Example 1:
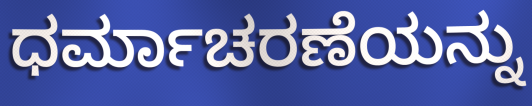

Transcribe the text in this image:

ಧರ್ಮಾಚರಣೆಯನ್ನು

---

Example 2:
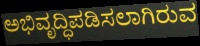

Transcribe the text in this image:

ಅಭಿವೃದ್ಧಿಪಡಿಸಲಾಗಿರುವ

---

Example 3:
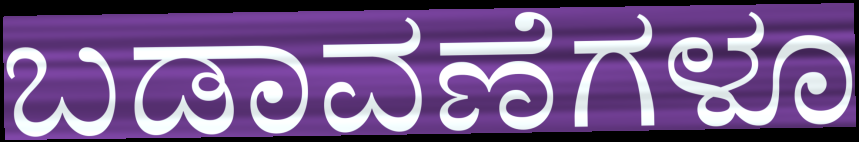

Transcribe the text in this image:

ಬಡಾವಣೆಗಳೂ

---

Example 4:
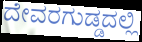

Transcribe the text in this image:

ದೇವರಗುಡ್ಡದಲ್ಲಿ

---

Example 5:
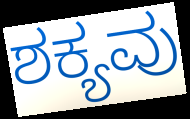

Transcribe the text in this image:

ಶಕ್ಯವು